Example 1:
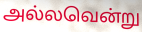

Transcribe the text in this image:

அல்லவென்று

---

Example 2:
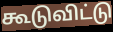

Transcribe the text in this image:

கூடுவிட்டு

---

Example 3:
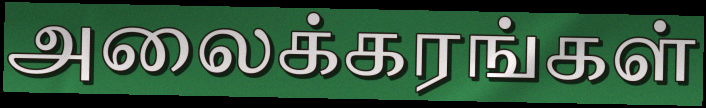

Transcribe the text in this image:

அலைக்கரங்கள்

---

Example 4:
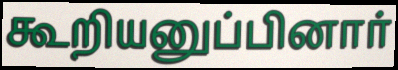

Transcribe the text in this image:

கூறியனுப்பினார்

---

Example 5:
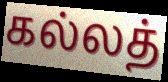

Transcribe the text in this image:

கல்லத்